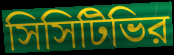
সিসিটিভির